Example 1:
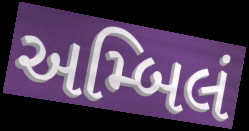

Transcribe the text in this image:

અમ્બિલં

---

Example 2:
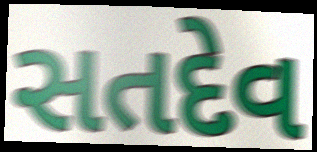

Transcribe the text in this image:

સતદેવ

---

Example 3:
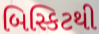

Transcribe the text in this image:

બિસ્કિટથી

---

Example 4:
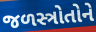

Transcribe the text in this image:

જળસ્ત્રોતોને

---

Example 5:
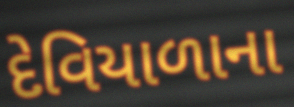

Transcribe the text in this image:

દેવિયાળાના